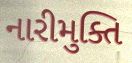
નારીમુક્તિ